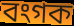
বংগক